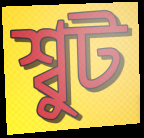
শ্বুট